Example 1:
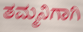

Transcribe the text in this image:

ತಮ್ಮನಿಗಾಗಿ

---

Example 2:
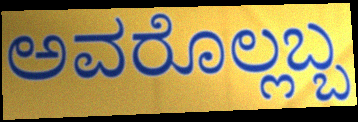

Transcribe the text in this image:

ಅವರೊಲ್ಲಬ್ಬ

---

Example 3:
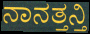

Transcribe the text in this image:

ನಾನತ್ತನ್ತಿ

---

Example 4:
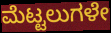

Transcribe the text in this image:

ಮೆಟ್ಟಲುಗಳೇ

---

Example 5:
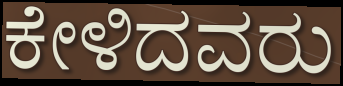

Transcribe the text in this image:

ಕೇಳಿದವರು